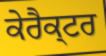
ਕੇਰੈਕ੍ਟਰ